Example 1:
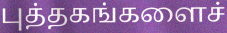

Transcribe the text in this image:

புத்தகங்களைச்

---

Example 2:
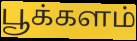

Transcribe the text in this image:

பூக்களம்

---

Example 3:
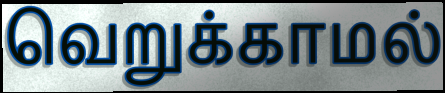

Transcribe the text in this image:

வெறுக்காமல்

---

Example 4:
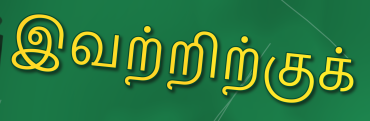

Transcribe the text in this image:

இவற்றிற்குக்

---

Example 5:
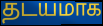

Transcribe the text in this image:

தடயமாக